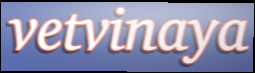
vetvinaya